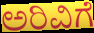
ಅರಿವಿಗೆ